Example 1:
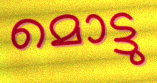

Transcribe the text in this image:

മൊട്ടു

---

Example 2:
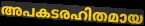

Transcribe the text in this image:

അപകടരഹിതമായ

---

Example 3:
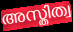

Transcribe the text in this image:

അസ്തിത്വ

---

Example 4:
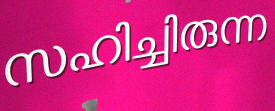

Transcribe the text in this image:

സഹിച്ചിരുന്ന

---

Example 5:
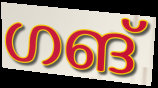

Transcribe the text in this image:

ഗങ്